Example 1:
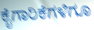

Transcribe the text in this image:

ಕೈಗಾರಿಕೆಗಳಿಗೂ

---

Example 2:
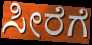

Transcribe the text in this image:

ಸೀರೆಗೆ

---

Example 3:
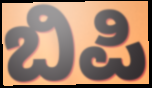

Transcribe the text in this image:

ಬಿಪಿ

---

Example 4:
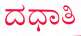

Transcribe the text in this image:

ದಧಾತಿ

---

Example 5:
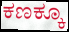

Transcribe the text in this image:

ಕಣಕ್ಕೂ